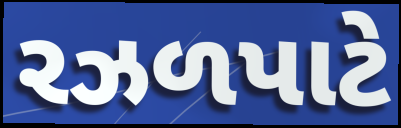
રઝળપાટે